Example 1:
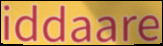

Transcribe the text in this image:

iddaare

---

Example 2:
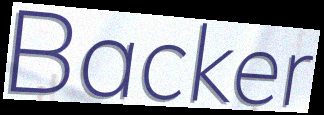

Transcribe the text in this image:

Backer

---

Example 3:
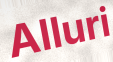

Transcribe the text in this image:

Alluri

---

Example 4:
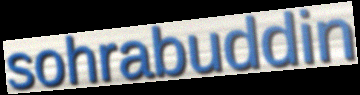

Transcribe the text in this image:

sohrabuddin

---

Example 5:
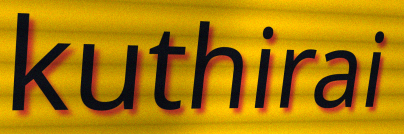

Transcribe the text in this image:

kuthirai